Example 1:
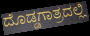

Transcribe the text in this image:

ದೊಡ್ಡಗಾತ್ರದಲ್ಲಿ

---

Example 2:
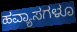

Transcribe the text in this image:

ಹವ್ಯಾಸಗಳೂ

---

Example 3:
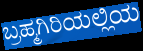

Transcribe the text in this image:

ಬ್ರಹ್ಮಗಿರಿಯಲ್ಲಿಯ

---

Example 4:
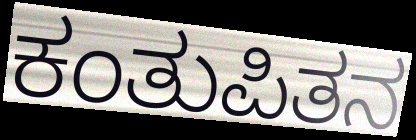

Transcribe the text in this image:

ಕಂತುಪಿತನ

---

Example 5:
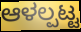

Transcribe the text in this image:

ಆಳಲ್ಪಟ್ಟ